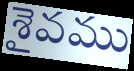
శైవము